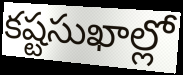
కష్టసుఖాల్లో